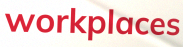
workplaces